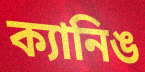
ক্যানিঙ